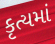
કૃત્યમાં